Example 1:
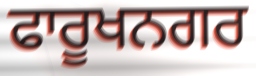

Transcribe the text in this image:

ਫਾਰੂਖਨਗਰ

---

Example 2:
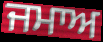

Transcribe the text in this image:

ਜਮਾਅ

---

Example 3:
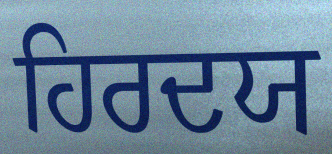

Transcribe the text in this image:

ਹਿਰਦਯ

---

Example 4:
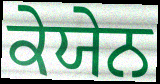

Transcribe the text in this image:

ਕੇਯੇਨ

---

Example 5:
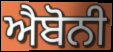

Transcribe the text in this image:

ਐਬੋਨੀ